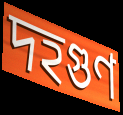
দহগুণ